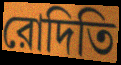
রোদিতি